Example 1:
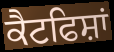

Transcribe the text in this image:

ਕੈਟਫਿਸ਼ਾਂ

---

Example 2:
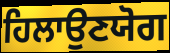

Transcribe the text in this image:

ਹਿਲਾਉਣਯੋਗ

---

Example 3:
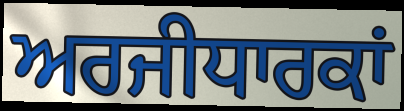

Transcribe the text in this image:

ਅਰਜੀਧਾਰਕਾਂ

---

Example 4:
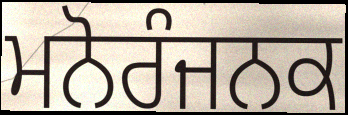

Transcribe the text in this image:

ਮਨੋਰੰਜਨਕ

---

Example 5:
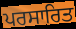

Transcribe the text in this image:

ਪਰਸਾਰਿਤ